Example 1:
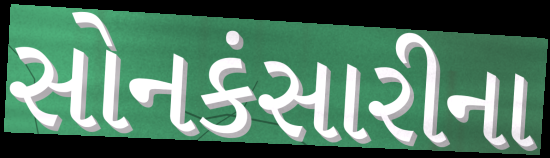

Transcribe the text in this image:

સોનકંસારીના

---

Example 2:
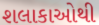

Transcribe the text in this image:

શલાકાઓથી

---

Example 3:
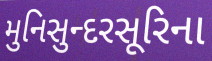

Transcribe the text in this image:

મુનિસુન્દરસૂરિના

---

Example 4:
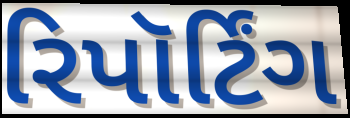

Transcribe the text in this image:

રિપૉર્ટિંગ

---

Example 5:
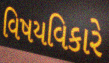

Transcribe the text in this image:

વિષયવિકારે